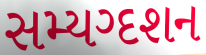
સમ્યગ્દશન